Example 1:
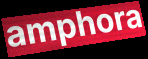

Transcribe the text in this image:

amphora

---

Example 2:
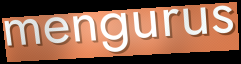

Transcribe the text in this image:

mengurus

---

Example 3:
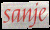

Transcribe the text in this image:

sanje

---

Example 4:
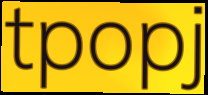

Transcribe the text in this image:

tpopj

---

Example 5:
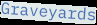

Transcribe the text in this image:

Graveyards